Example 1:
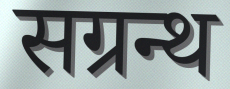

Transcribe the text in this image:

सग्रन्थ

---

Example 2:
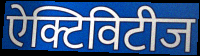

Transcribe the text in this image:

ऐक्टिविटीज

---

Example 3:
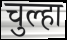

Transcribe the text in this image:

चुल्हा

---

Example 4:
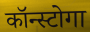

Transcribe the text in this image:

कॉन्स्टोगा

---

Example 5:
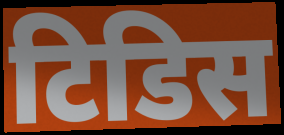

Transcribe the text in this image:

टिडिस